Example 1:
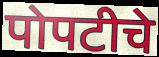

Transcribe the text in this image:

पोपटीचे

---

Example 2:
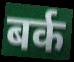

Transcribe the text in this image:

बर्क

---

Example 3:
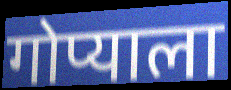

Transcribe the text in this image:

गोप्याला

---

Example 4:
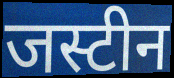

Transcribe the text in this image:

जस्टीन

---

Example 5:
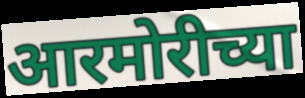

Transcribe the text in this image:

आरमोरीच्या